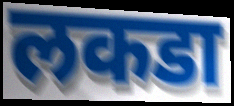
लकडा